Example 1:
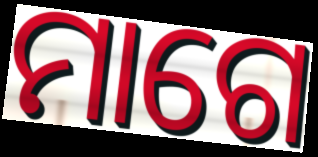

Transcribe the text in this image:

ମାଗେ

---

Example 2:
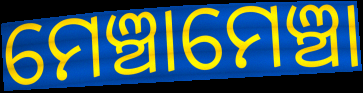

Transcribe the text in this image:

ମେଞ୍ଚାମେଞ୍ଚା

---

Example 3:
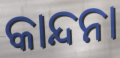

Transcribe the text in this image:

କାନ୍ଦନା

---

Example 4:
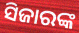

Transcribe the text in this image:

ସିଜାରଙ୍କ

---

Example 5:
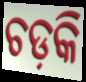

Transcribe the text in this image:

ଚଡ଼କି